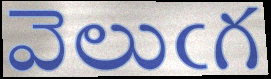
వెలుఁగ